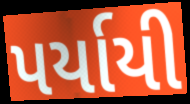
પર્યાયી